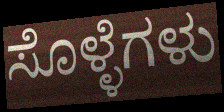
ಸೊಳ್ಳೆಗಳು